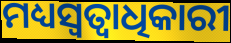
ମଧ୍ୟସ୍ୱତ୍ୱାଧିକାରୀ